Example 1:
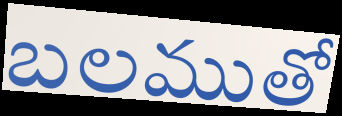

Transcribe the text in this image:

బలముతో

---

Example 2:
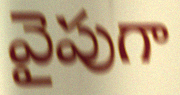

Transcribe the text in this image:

వైపుగా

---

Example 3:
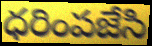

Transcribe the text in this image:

ధరింపజేసి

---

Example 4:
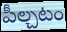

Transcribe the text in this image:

పీల్చటం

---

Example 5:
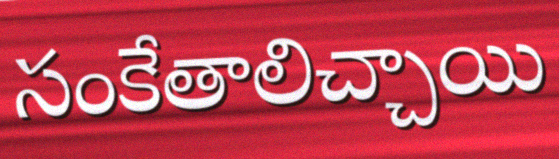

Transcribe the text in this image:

సంకేతాలిచ్చాయి